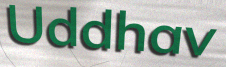
Uddhav